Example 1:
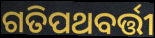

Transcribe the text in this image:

ଗତିପଥବର୍ତ୍ତୀ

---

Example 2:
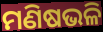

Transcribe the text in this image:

ମଣିଷଭଳି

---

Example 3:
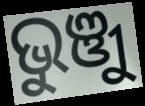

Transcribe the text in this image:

ଭୁଞ୍ଜୁ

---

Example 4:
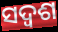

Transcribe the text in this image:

ସଦ୍ଵଶ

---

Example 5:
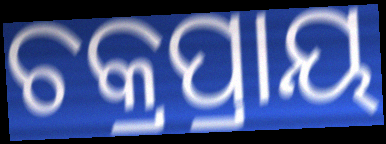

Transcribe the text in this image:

ଚକ୍ରପ୍ରାୟ